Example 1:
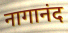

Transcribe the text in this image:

नागानंद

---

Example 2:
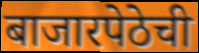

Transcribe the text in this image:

बाजारपेठेची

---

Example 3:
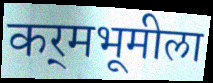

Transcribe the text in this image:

कर्मभूमीला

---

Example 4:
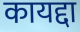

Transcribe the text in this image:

कायद्दा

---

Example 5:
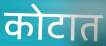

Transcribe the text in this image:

कोटात